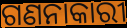
ଗଣନାକାରୀ